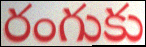
రంగుకు